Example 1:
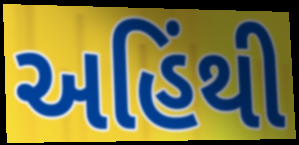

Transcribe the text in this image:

અહિંથી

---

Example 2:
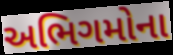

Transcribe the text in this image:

અભિગમોના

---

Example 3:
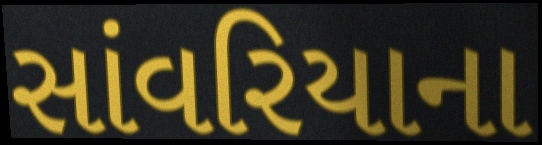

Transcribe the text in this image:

સાંવરિયાના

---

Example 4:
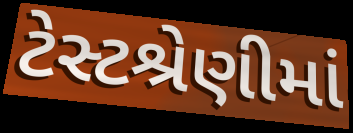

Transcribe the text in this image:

ટેસ્ટશ્રેણીમાં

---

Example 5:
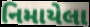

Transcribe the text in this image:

નિમાયેલા